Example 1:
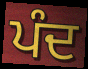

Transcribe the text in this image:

ਪੰਦ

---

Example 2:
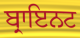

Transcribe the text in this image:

ਬ੍ਰਾਇਨਟ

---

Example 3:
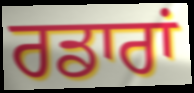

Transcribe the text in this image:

ਰਡਾਰਾਂ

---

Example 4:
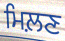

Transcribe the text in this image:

ਮਿਲ਼ਣ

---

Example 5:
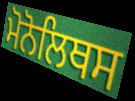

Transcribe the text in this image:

ਮੋਨੋਲਿਥਸ